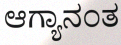
ಆಗ್ಯಾನಂತ